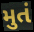
મુતં